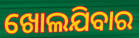
ଖୋଲଯିବାର